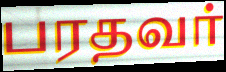
பரதவர்